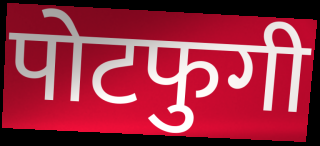
पोटफुगी